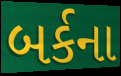
બર્કના